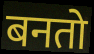
बनतो